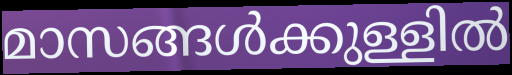
മാസങ്ങൾക്കുള്ളിൽ